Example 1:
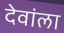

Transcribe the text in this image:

देवांला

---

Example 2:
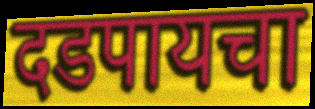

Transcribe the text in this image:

दडपायचा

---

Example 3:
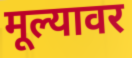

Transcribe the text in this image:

मूल्यावर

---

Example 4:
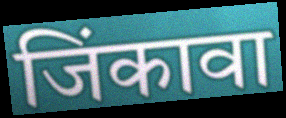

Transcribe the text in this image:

जिंकावा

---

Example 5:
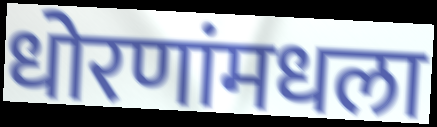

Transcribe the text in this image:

धोरणांमधला